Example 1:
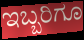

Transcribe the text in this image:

ಇಬ್ಬರಿಗೂ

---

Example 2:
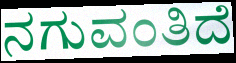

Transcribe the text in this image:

ನಗುವಂತಿದೆ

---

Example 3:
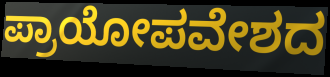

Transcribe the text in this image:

ಪ್ರಾಯೋಪವೇಶದ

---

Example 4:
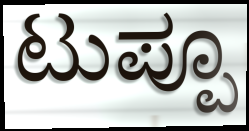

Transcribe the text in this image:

ಟುಪ್ಪೂ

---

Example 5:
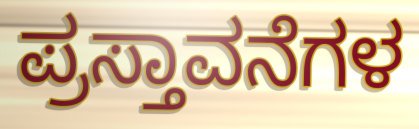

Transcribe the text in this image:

ಪ್ರಸ್ತಾವನೆಗಳ